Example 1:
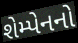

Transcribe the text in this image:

શેમ્પેનનો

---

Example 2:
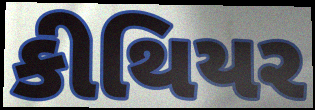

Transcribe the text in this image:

કીથિયર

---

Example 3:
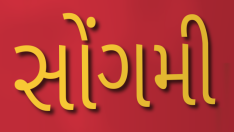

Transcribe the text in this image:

સોંગમી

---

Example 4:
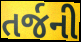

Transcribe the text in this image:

તર્જની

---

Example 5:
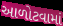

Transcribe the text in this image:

આળોટવામાં